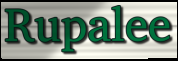
Rupalee